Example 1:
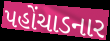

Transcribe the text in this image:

પહોંચાડનાર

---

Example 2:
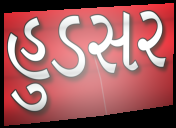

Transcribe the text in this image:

હુડસર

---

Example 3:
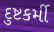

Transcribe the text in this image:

દુષ્ટકર્મી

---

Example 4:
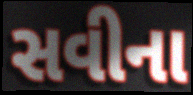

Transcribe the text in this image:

સવીના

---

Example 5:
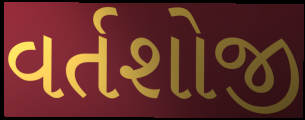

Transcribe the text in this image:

વર્તશોજી